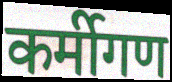
कर्मीगण